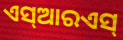
ଏସ୍ଆରଏସ୍